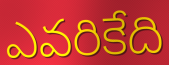
ఎవరికేది